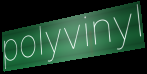
polyvinyl